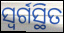
ସ୍ୱର୍ଗସ୍ଥିତ